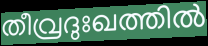
തീവ്രദുഃഖത്തിൽ